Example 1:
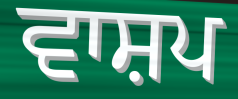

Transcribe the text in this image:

ਵਾਸ਼ਪ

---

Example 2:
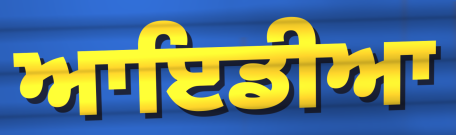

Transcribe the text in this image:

ਆਇਡੀਆ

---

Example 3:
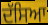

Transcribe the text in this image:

ਦੱਸਿਆ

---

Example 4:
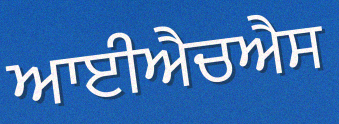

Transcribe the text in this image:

ਆਈਐਚਐਸ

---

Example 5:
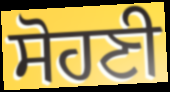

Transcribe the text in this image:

ਸੋਹਣੀ